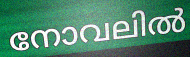
നോവലിൽ